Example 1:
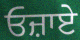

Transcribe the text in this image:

ਓਜ਼ਾਏ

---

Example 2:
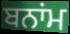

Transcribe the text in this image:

ਬਨਾਂਮ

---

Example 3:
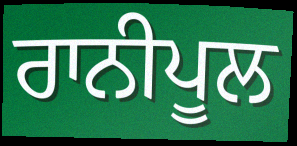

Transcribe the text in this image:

ਰਾਨੀਪੂਲ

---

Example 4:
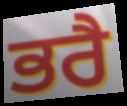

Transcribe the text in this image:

ਭਰੈ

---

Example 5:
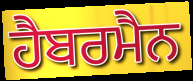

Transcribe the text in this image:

ਹੈਬਰਮੈਨ